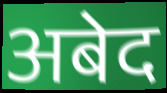
अबेद